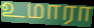
உமாரா